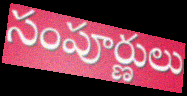
సంపూర్ణులు